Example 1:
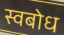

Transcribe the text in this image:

स्वबोध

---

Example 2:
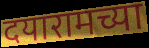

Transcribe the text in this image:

दयारामच्या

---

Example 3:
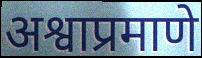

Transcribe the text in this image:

अश्वाप्रमाणे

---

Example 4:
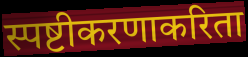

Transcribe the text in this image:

स्पष्टीकरणाकरिता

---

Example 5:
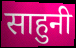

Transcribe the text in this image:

साहुनी